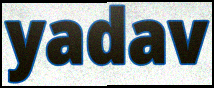
yadav